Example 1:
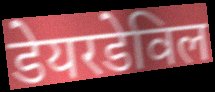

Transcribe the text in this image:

डेयरडेविल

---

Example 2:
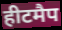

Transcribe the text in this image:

हीटमैप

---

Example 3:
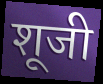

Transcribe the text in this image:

शूजी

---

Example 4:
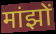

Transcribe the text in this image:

मांझों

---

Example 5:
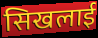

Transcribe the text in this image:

सिखलाई